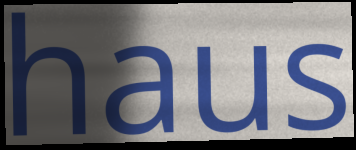
haus